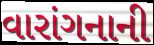
વારાંગનાની